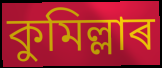
কুমিল্লাৰ